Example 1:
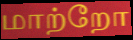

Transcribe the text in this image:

மாற்றோ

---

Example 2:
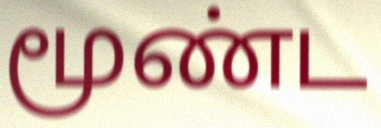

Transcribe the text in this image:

மூண்ட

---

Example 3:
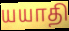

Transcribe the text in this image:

யயாதி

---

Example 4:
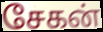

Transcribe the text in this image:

சேகன்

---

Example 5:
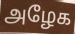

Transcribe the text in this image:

அழேக